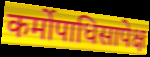
कर्मोपाधिसापेक्ष